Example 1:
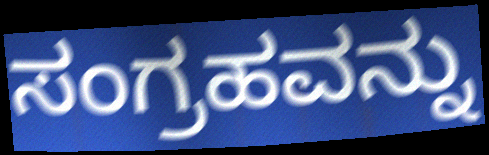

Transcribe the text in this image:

ಸಂಗ್ರಹವನ್ನು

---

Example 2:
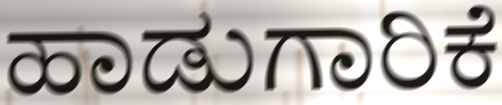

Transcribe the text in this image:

ಹಾಡುಗಾರಿಕೆ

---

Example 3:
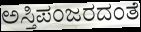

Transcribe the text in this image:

ಅಸ್ತಿಪಂಜರದಂತೆ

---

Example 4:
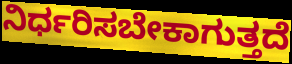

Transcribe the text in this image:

ನಿರ್ಧರಿಸಬೇಕಾಗುತ್ತದೆ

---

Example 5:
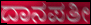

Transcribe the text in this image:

ದಾನಪತೀ